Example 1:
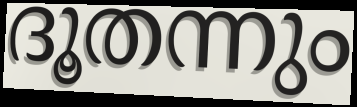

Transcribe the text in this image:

ദൂതന്നും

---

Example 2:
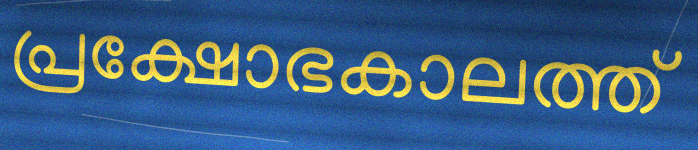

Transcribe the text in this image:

പ്രക്ഷോഭകാലത്ത്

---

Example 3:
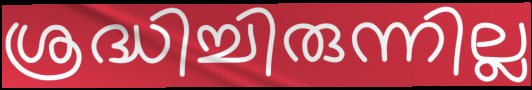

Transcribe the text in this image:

ശ്രദ്ധിച്ചിരുന്നില്ല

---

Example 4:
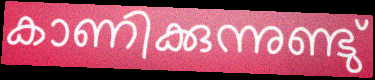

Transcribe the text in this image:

കാണിക്കുന്നുണ്ടു്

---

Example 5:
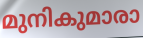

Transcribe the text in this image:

മുനികുമാരാ